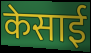
केसाई